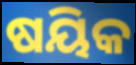
ଷୟିକ